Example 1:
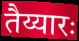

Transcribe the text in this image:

तैय्यारः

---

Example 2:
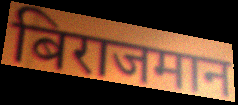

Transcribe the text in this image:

बिराजमान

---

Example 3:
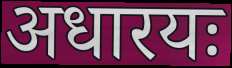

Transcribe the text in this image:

अधारयः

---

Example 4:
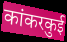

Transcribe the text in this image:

कांकरकुई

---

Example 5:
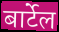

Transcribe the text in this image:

बार्टेल